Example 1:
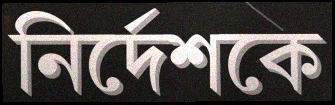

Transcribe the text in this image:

নির্দেশকে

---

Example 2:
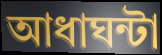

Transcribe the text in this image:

আধাঘন্টা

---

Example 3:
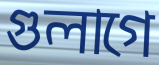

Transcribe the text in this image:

গুলাগে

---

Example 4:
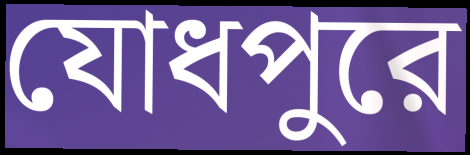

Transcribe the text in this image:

যোধপুরে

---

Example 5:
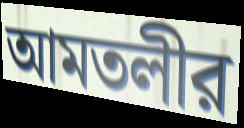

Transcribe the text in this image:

আমতলীর